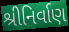
શ્રીનિર્વાણ